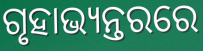
ଗୃହାଭ୍ୟନ୍ତରରେ